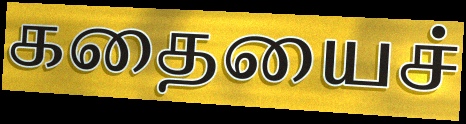
கதையைச்